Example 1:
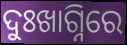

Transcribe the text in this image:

ଦୁଃଖାଗ୍ନିରେ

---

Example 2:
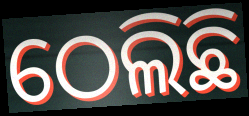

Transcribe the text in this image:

ଠେଲିଛି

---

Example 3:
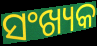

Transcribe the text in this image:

ସଂଖ୍ୟକ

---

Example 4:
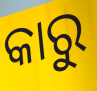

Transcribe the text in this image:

କାରୁ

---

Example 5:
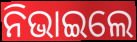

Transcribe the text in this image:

ନିଭାଇଲେ